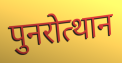
पुनरोत्थान